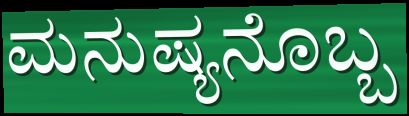
ಮನುಷ್ಯನೊಬ್ಬ